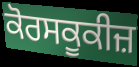
ਕੋਰਸਕੂਕੀਜ਼